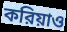
করিয়াও